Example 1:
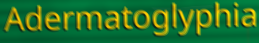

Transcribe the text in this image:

Adermatoglyphia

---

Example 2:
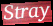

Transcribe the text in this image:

Stray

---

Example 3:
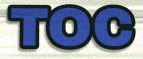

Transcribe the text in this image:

TOC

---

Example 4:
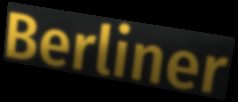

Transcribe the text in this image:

Berliner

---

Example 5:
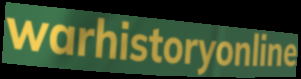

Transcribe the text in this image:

warhistoryonline